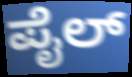
ಪೈಲ್